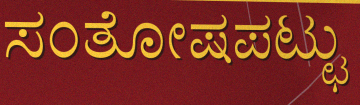
ಸಂತೋಷಪಟ್ಟು